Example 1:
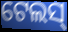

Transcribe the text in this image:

ଟେଲସ୍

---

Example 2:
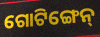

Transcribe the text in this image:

ଗୋଟିଙ୍ଗେନ୍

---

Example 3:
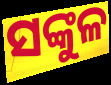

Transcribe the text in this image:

ସଙ୍କୁଳ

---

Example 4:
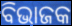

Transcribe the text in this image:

ବିଭାଜକ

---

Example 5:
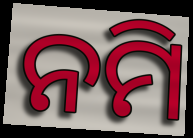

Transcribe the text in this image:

ନମି